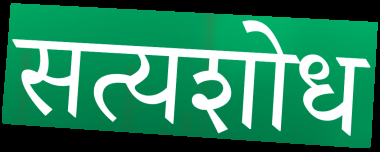
सत्यशोध